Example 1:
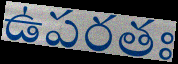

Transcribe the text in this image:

ఉపరతః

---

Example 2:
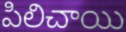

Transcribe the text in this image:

పిలిచాయి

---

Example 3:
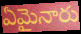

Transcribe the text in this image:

ఏమైనారు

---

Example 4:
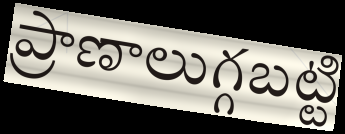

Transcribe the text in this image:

ప్రాణాలుగ్గబట్టి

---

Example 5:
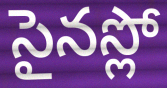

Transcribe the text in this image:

సైనస్లో